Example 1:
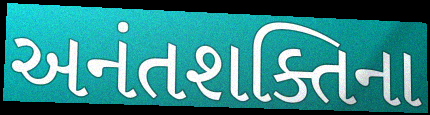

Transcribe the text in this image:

અનંતશક્તિના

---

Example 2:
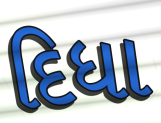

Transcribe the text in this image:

દિધા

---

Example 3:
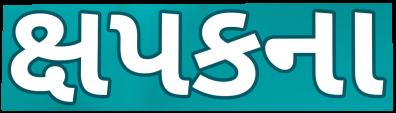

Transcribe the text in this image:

ક્ષપકના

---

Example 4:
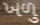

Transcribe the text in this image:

ખળુ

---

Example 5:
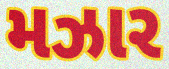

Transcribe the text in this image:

મઝાર